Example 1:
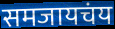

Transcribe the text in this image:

समजायचंय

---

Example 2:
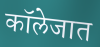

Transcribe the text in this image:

कॉलेजात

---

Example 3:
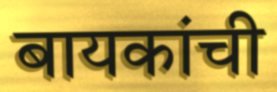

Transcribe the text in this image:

बायकांची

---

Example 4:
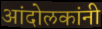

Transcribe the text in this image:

आंदोलकांनी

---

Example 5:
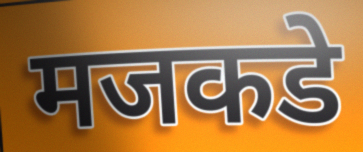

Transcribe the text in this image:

मजकडे